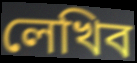
লেখিব